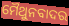
ମୈଥୁନବାଦର